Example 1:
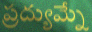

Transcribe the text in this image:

ప్రద్యుమ్నే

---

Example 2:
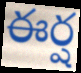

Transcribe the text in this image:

ఈర్ష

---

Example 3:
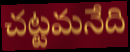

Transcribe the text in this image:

చట్టమనేది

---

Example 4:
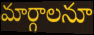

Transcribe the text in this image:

మార్గాలనూ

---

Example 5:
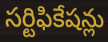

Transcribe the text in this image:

సర్టిఫికేషన్లు